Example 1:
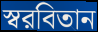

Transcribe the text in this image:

স্বরবিতান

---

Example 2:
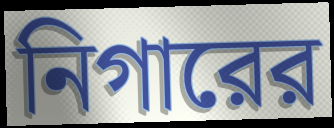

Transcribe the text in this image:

নিগারের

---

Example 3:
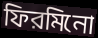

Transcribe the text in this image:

ফিরমিনো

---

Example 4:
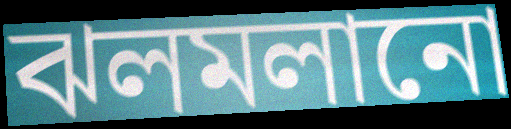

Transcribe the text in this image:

ঝলমলানো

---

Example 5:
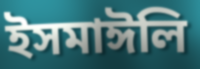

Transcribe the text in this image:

ইসমাঈলি